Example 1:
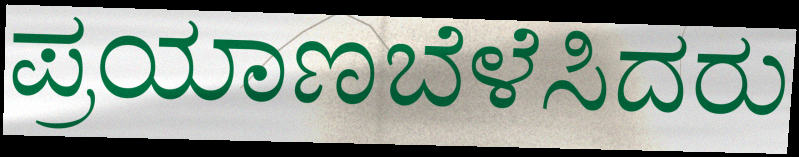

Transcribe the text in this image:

ಪ್ರಯಾಣಬೆಳೆಸಿದರು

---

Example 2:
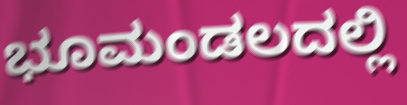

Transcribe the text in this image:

ಭೂಮಂಡಲದಲ್ಲಿ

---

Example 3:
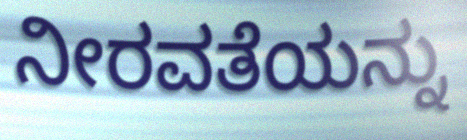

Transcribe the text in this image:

ನೀರವತೆಯನ್ನು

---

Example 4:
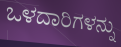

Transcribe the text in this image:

ಒಳದಾರಿಗಳನ್ನು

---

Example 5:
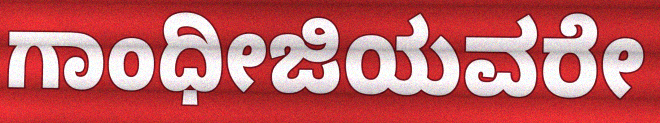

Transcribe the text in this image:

ಗಾಂಧೀಜಿಯವರೇ